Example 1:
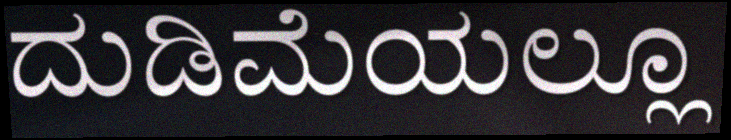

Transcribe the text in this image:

ದುಡಿಮೆಯಲ್ಲೂ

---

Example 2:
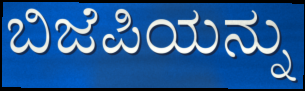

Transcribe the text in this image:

ಬಿಜೆಪಿಯನ್ನು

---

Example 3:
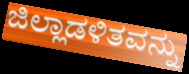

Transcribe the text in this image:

ಜಿಲ್ಲಾಡಳಿತವನ್ನು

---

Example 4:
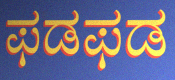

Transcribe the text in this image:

ಫಡಫಡ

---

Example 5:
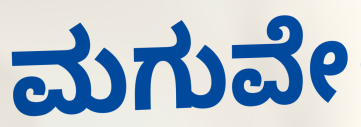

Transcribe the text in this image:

ಮಗುವೇ